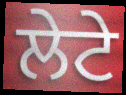
ਲੇਟੇ